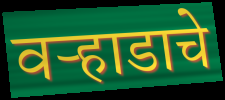
वऱ्हाडाचे